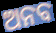
ଅନବ